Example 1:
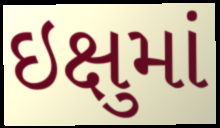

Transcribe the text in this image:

ઇક્ષુમાં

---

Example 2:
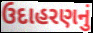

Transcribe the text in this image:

ઉદાહરણનું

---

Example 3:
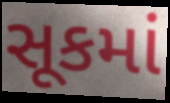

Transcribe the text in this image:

સૂકમાં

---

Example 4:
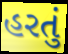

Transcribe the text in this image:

હરતું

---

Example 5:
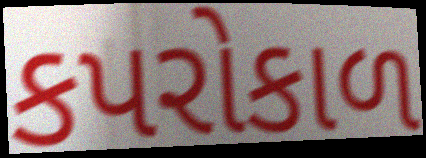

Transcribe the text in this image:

કપરોકાળ